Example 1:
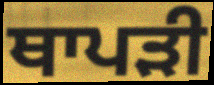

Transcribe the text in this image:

ਥਾਪੜੀ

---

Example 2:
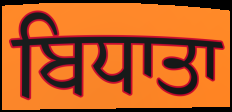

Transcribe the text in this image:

ਬਿਧਾਤਾ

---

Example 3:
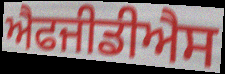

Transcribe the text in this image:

ਐਫਜੀਡੀਐਸ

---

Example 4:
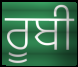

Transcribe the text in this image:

ਰੂਬੀ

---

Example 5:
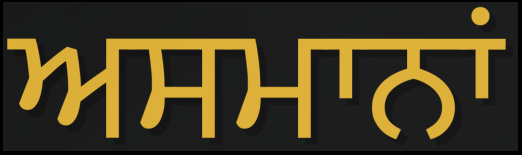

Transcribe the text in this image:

ਅਸਮਾਨਾਂ